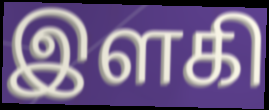
இளகி